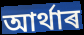
আৰ্থাৰ